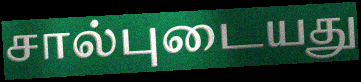
சால்புடையது